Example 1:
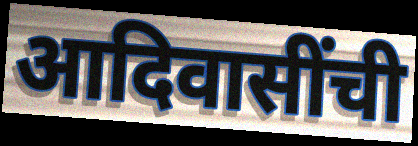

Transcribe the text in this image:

आदिवासींची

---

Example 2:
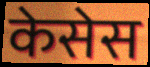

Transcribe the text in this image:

केसेस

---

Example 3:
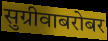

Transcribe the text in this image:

सुग्रीवाबरोबर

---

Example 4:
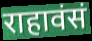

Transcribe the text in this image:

राहावंसं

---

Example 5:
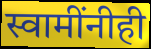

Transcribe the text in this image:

स्वामींनीही